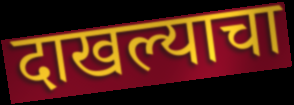
दाखल्याचा